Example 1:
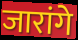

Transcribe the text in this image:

जारांगे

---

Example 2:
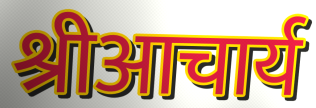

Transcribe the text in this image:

श्रीआचार्य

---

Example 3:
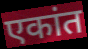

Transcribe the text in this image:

एकांत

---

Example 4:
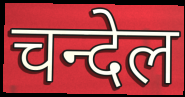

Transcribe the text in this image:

चन्देल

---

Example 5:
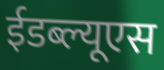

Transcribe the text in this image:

ईडब्ल्यूएस